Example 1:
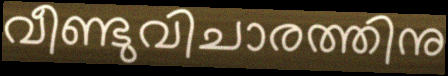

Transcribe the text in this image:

വീണ്ടുവിചാരത്തിനു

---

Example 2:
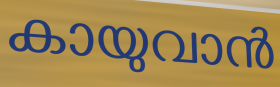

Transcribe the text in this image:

കായുവാൻ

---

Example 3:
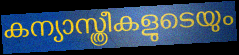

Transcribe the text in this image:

കന്യാസ്ത്രീകളുടെയും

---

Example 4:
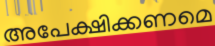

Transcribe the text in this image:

അപേക്ഷിക്കണമെ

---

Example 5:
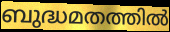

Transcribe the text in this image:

ബുദ്ധമതത്തിൽ